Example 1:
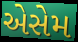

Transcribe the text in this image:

એસેમ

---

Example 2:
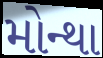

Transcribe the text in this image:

મોન્થા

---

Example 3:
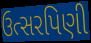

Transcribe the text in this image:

ઉત્સરપિણી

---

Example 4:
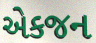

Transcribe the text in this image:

એકજન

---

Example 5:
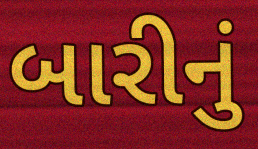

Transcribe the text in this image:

બારીનું